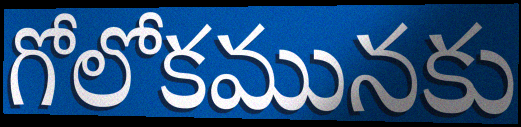
గోలోకమునకు